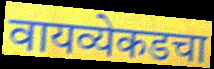
वायव्येकडचा